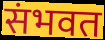
संभवत